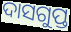
ଦାସଗୁପ୍ତ